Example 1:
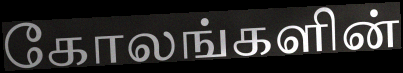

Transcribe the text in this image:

கோலங்களின்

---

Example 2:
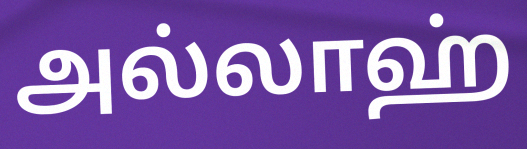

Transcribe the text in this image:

அல்லாஹ்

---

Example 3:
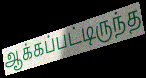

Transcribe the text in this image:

ஆக்கப்பட்டிருந்த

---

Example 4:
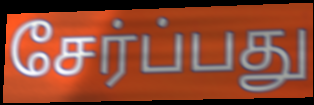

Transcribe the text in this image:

சேர்ப்பது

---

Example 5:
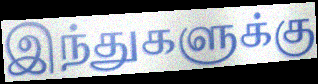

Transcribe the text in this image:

இந்துகளுக்கு